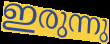
ഇരുന്നു